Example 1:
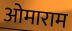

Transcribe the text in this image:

ओमाराम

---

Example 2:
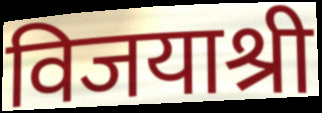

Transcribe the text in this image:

विजयाश्री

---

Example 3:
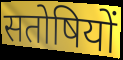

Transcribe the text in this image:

सतोषियों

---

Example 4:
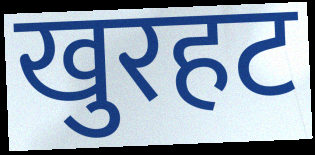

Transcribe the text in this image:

खुरहट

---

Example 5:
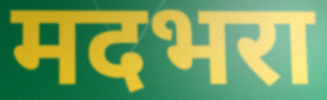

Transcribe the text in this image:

मदभरा